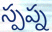
స్పప్న